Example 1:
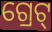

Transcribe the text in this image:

ଗ୍ରେଟ୍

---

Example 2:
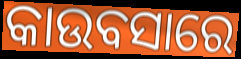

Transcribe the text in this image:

କାଉବସାରେ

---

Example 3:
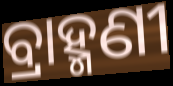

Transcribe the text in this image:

ବ୍ରାହ୍ମଣୀ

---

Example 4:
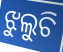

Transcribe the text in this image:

ଝୁଲୁଚି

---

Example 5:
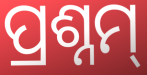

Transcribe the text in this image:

ପ୍ରଶ୍ନମ୍